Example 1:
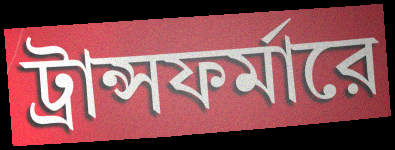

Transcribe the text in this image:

ট্রান্সফর্মারে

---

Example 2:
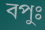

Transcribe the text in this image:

বপুঃ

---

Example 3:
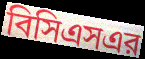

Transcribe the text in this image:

বিসিএসএর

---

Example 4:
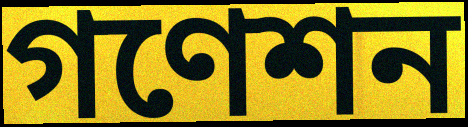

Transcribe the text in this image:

গণেশন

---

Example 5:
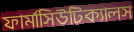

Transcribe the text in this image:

ফার্মাসিউটিক্যালস